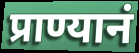
प्राण्यानं